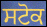
ਸਟੋਕ